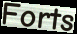
Forts